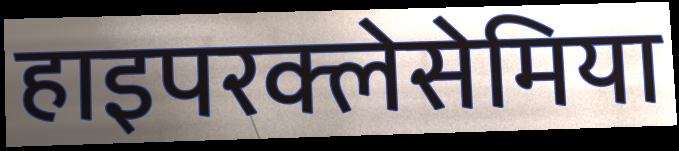
हाइपरक्लेसेमिया